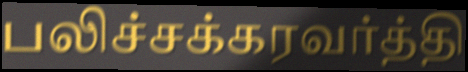
பலிச்சக்கரவர்த்தி